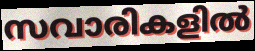
സവാരികളിൽ